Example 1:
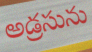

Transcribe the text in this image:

అడ్రసును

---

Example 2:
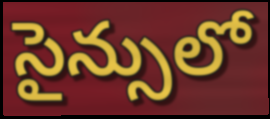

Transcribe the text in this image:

సైన్సులో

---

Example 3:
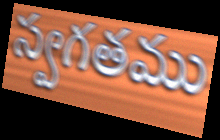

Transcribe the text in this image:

స్వగతము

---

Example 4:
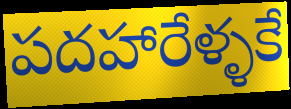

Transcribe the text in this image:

పదహారేళ్ళకే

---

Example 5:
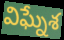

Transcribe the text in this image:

విఘ్నేశ